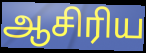
ஆசிரிய